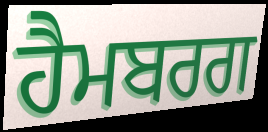
ਹੈਮਬਰਗ